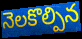
నెలకొల్పిన